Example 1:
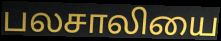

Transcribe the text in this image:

பலசாலியை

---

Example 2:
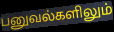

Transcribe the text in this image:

பனுவல்களிலும்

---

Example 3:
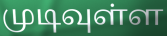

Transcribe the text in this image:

முடிவுள்ள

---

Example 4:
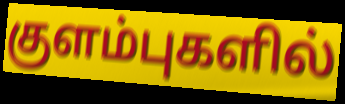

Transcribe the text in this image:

குளம்புகளில்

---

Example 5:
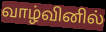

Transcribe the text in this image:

வாழ்வினில்